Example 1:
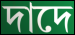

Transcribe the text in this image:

দাদে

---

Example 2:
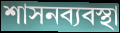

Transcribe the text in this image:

শাসনব্যবস্থা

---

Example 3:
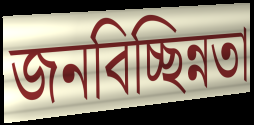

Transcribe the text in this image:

জনবিচ্ছিন্নতা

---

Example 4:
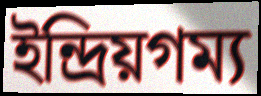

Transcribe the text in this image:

ইন্দ্রিয়গম্য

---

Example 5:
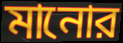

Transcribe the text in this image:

মানোর